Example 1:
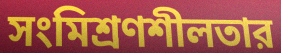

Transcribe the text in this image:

সংমিশ্রণশীলতার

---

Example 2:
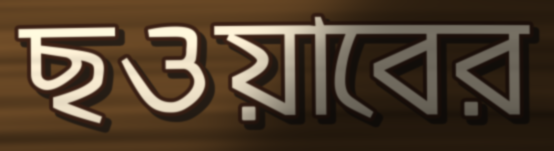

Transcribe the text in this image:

ছওয়াবের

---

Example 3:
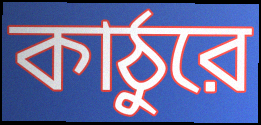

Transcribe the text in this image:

কাঠুরে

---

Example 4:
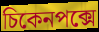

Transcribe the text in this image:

চিকেনপক্সে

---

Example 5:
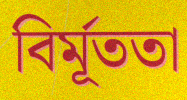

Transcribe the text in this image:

বির্মূততা